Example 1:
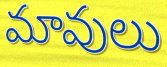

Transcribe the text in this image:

మావులు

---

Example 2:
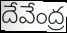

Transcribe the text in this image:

దేవేంద్ర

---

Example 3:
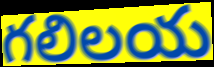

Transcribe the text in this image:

గలిలయ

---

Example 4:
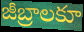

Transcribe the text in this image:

జీబ్రాలకూ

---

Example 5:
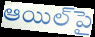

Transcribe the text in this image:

ఆయిల్‌పై